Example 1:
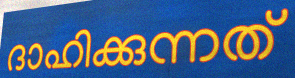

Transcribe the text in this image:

ദാഹിക്കുന്നത്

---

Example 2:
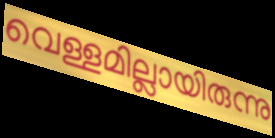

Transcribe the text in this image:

വെള്ളമില്ലായിരുന്നു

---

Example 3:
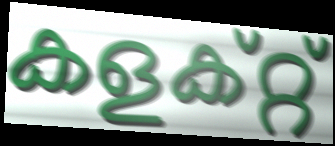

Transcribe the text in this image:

കളക്റ്റ്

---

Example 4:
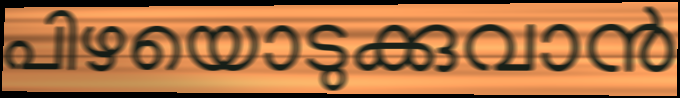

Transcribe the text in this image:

പിഴയൊടുക്കുവാൻ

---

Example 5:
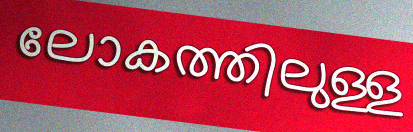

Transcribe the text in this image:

ലോകത്തിലുള്ള